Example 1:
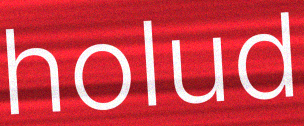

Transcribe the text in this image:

holud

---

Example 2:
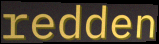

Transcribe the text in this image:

redden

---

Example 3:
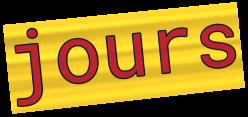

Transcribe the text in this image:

jours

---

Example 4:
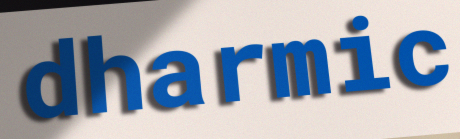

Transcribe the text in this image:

dharmic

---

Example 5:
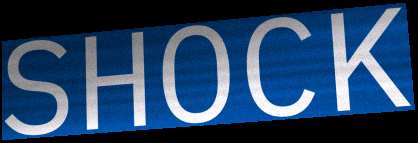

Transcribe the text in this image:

SHOCK